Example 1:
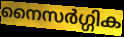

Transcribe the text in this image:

നൈസർഗ്ഗിക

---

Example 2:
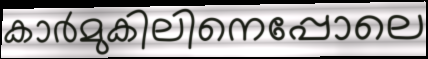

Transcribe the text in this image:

കാർമുകിലിനെപ്പോലെ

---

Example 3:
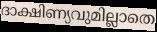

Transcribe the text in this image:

ദാക്ഷിണ്യവുമില്ലാതെ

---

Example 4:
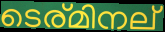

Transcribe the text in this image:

ടെര്മിനല്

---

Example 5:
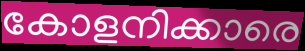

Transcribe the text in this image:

കോളനിക്കാരെ